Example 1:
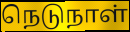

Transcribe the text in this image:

நெடுநாள்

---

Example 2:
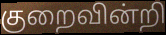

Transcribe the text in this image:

குறைவின்றி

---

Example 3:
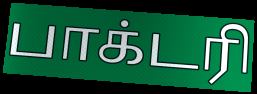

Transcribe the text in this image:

பாக்டரி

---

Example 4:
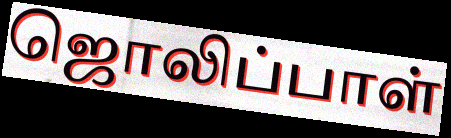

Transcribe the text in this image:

ஜொலிப்பாள்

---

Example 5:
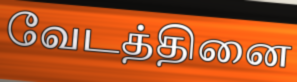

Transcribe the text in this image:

வேடத்தினை